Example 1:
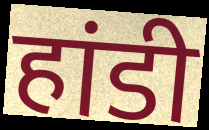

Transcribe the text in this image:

हांडी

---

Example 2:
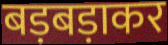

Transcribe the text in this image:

बड़बड़ाकर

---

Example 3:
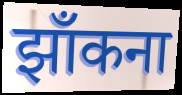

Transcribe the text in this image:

झाँकना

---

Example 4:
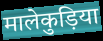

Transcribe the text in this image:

मालेकुड़िया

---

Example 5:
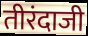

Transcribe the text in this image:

तीरंदाजी